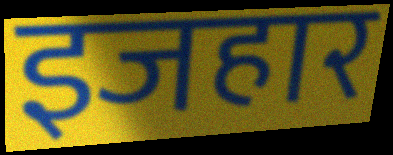
इजहार